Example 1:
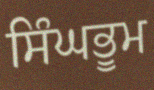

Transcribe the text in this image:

ਸਿੰਘਭੂਮ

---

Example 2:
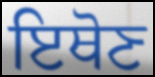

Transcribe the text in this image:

ਇਥੋਣ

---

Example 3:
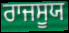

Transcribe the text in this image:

ਰਾਜਸੂਯ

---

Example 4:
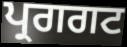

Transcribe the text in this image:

ਪ੍ਰਗਗਟ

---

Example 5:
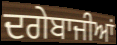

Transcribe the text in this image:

ਦਗੇਬਾਜੀਆਂ